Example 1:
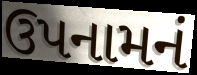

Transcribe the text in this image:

ઉપનામનં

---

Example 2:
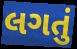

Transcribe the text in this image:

લગતું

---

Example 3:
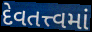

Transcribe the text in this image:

દેવતત્ત્વમાં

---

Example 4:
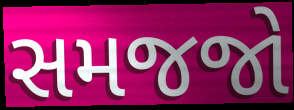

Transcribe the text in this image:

સમજજો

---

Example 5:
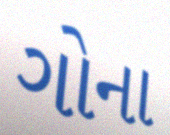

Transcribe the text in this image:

ગોના